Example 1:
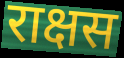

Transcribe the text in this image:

राक्षस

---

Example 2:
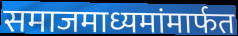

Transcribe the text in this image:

समाजमाध्यमांमार्फत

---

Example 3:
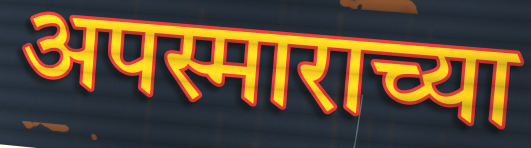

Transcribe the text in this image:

अपस्माराच्या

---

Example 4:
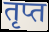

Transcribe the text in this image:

तृप्त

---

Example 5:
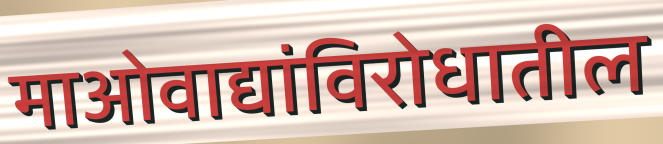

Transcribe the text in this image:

माओवाद्यांविरोधातील